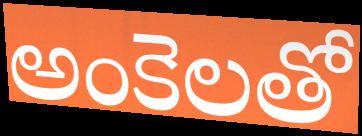
అంకెలతో